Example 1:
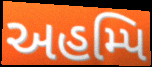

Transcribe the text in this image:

અહમ્પિ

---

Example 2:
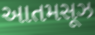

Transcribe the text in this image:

આતમસૂઝ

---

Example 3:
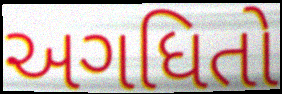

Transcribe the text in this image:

અગધિતો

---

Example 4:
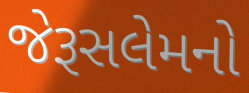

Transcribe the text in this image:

જેરૂસલેમનો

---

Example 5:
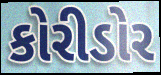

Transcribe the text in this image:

કોરીડોર